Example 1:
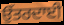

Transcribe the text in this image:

ਉੱਤਰਦਾਈ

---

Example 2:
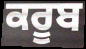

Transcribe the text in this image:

ਕਰੂਬ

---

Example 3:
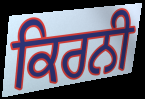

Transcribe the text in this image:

ਕਿਰਨੀ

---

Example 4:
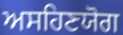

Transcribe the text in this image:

ਅਸਹਿਣਯੋਗ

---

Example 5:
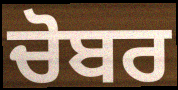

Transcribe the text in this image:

ਚੋਬਰ